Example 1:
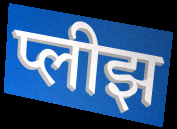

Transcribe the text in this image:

प्लीझ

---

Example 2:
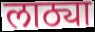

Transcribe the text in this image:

लाठ्या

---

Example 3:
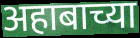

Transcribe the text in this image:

अहाबाच्या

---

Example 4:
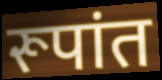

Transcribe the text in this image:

रूपांत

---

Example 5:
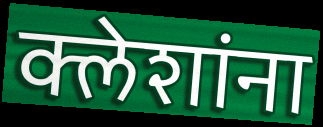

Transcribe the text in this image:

क्लेशांना